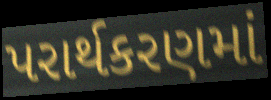
પરાર્થકરણમાં